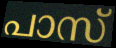
പാസ്